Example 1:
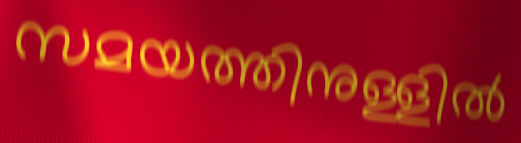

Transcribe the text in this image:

സമയത്തിനുള്ളിൽ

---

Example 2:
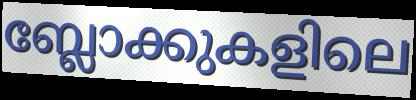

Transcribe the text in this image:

ബ്ലോക്കുകളിലെ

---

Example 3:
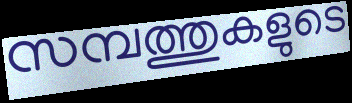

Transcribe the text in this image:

സമ്പത്തുകളുടെ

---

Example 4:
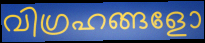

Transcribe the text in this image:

വിഗ്രഹങ്ങളോ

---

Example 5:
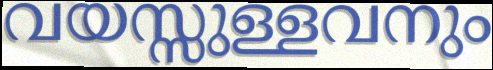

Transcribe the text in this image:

വയസ്സുള്ളവനും